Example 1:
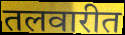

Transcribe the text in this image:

तलवारीत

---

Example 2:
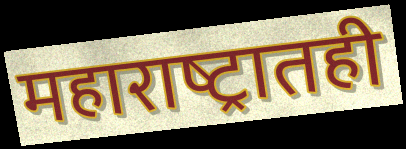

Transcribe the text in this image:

महाराष्ट्रातही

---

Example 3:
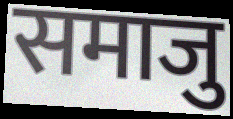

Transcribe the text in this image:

समाजु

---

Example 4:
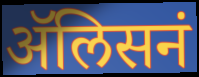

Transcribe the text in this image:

ॲलिसनं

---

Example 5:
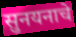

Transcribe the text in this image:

सुनयनाचे